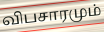
விபசாரமும்